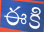
ఈకి